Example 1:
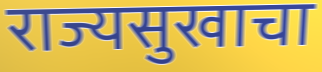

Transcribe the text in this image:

राज्यसुखाचा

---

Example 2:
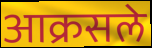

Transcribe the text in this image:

आक्रसले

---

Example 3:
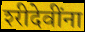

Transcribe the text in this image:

श्रीदेवींना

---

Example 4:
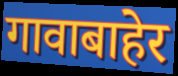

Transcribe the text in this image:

गावाबाहेर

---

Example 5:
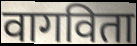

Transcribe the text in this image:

वागविता